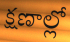
క్షణాల్లో